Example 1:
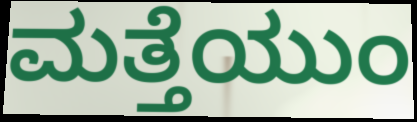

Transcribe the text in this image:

ಮತ್ತೆಯುಂ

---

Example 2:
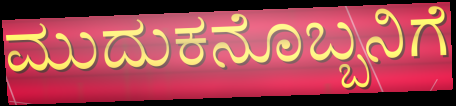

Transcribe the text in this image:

ಮುದುಕನೊಬ್ಬನಿಗೆ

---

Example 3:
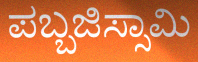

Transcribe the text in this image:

ಪಬ್ಬಜಿಸ್ಸಾಮಿ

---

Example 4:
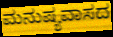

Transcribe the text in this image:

ಮನುಷ್ಯವಾಸದ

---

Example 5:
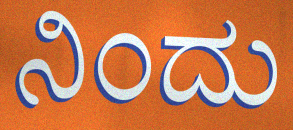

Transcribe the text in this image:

ನಿಂದು